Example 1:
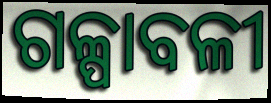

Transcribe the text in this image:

ଗଳ୍ପାବଳୀ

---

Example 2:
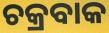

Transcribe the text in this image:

ଚକ୍ରବାକ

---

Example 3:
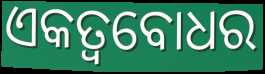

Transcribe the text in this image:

ଏକତ୍ୱବୋଧର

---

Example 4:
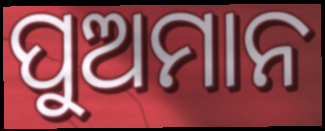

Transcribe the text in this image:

ପୁଅମାନ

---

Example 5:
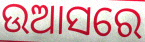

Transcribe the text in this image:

ଉଆସରେ